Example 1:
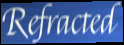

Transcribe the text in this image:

Refracted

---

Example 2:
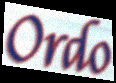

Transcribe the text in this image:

Ordo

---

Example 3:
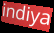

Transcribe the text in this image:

indiya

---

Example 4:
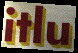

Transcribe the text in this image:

itlu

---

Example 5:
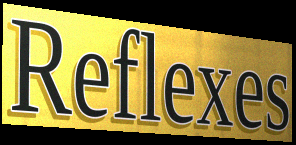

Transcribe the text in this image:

Reflexes